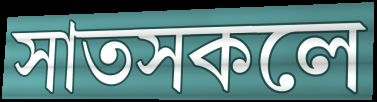
সাতসকলে